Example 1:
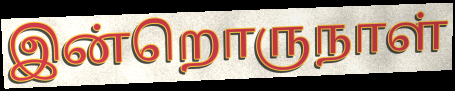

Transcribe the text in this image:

இன்றொருநாள்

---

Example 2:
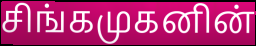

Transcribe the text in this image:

சிங்கமுகனின்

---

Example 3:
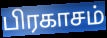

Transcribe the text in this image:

பிரகாசம்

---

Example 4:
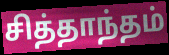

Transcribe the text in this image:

சித்தாந்தம்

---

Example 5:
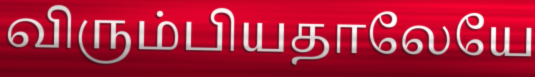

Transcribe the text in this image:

விரும்பியதாலேயே